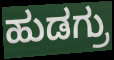
ಹುಡಗ್ರು